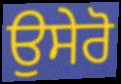
ਉਸੇਰੋ